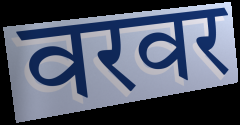
वरवर